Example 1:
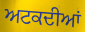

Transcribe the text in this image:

ਅਟਕਦੀਆਂ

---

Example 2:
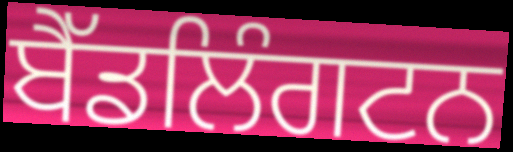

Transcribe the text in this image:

ਬੈੱਡਲਿੰਗਟਨ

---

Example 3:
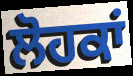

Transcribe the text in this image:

ਲੋਹਕਾਂ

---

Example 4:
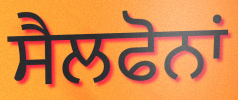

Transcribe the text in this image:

ਸੈਲਫੋਨਾਂ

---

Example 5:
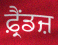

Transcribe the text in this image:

ਫ਼੍ਰੈਂਡਜ਼